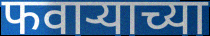
फवाऱ्याच्या